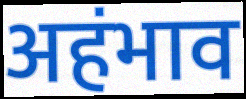
अहंभाव